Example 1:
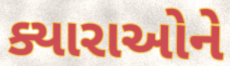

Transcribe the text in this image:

ક્યારાઓને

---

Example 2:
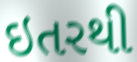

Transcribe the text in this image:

ઇતરથી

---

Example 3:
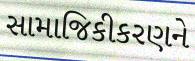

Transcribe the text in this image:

સામાજિકીકરણને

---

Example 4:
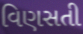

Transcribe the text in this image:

વિણસતી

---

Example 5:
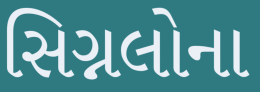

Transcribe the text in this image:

સિગ્નલોના